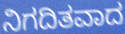
ನಿಗದಿತವಾದ